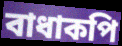
বাধাকপি